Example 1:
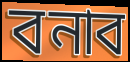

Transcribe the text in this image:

বনাব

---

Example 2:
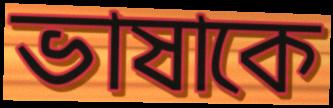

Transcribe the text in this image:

ভাষাকে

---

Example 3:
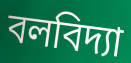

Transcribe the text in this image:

বলবিদ্যা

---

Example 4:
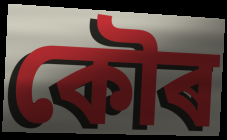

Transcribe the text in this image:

কৌৰ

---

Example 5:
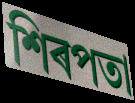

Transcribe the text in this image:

শিৰপতা